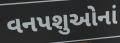
વનપશુઓનાં